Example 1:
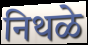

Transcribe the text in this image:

निथळे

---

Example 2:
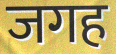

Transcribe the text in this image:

जगह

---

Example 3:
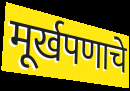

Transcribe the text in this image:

मूर्खपणाचे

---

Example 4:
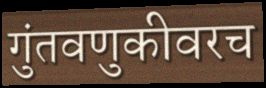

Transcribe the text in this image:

गुंतवणुकीवरच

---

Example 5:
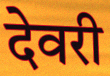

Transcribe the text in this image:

देवरी